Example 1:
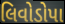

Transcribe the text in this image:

લિવોડોપા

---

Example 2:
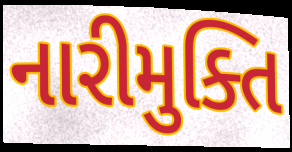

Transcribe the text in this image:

નારીમુક્તિ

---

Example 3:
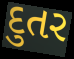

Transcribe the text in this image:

દુતર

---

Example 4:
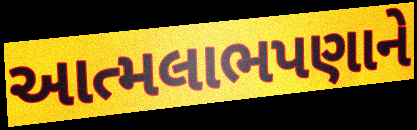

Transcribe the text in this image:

આત્મલાભપણાને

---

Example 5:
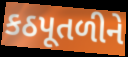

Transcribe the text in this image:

કઠપૂતળીને